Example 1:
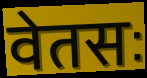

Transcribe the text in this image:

वेतसः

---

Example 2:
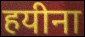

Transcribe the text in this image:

हयीना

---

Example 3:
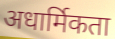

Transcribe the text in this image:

अधार्मिकता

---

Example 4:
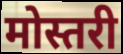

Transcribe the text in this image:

मोस्तरी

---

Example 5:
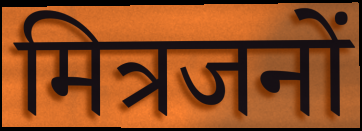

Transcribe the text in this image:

मित्रजनों